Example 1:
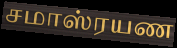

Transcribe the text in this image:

சமாஸ்ரயண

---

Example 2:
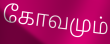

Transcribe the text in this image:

கோவமும்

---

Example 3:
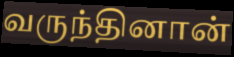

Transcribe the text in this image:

வருந்தினான்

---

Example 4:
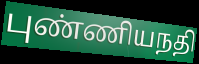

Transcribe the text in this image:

புண்ணியநதி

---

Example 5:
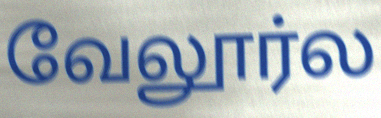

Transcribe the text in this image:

வேலூர்ல